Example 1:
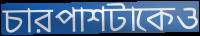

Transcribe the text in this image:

চারপাশটাকেও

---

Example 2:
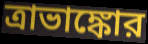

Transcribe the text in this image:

ত্রাভাঙ্কোর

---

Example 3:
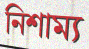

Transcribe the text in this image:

নিশাম্য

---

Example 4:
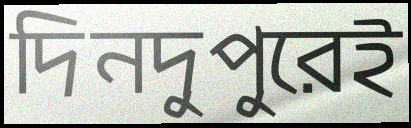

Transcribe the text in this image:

দিনদুপুরেই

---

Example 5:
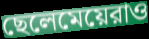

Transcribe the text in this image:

ছেলেমেয়েরাও